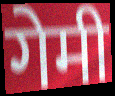
गेमी